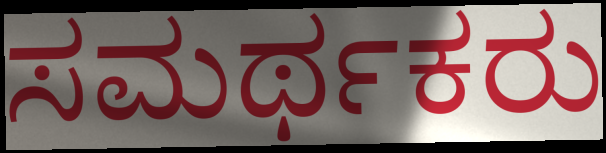
ಸಮರ್ಥಕರು